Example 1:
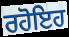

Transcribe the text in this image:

ਰਹੋਇਹ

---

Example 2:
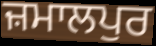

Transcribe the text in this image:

ਜ਼ਮਾਲਪੁਰ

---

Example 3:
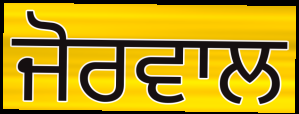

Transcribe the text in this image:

ਜੋਰਵਾਲ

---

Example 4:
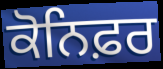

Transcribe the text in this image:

ਕੋਨਿਫ਼ਰ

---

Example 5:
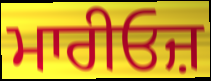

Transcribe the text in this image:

ਮਾਰੀਓਜ਼